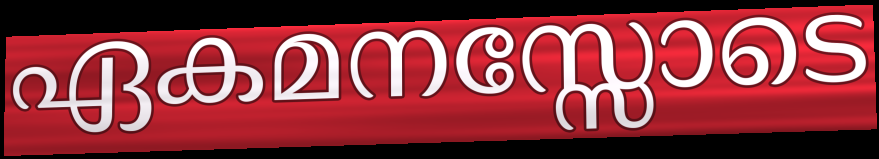
ഏകമനസ്സോടെ